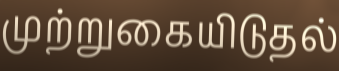
முற்றுகையிடுதல்